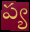
ప్య